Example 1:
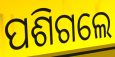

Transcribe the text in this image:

ପଶିଗଲେ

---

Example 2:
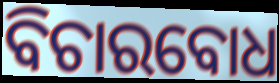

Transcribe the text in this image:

ବିଚାରବୋଧ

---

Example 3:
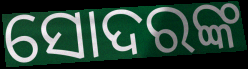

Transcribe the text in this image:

ସୋଦରଙ୍କ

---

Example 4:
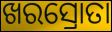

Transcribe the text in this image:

ଖରସ୍ରୋତା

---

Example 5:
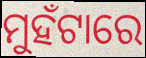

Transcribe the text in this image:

ମୁହଁଟାରେ